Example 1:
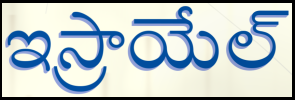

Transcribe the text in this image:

ఇస్రాయేల్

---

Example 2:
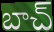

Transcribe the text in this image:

బాచ్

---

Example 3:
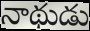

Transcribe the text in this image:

నాథుడు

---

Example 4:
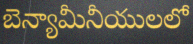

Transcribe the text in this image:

బెన్యామీనీయులలో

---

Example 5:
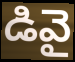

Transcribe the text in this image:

డివై